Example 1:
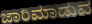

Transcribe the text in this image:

ಜಾರಿಮಾಡುವ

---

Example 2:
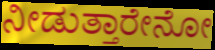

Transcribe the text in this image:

ನೀಡುತ್ತಾರೇನೋ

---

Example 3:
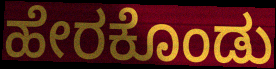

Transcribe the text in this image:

ಹೇರಕೊಂಡು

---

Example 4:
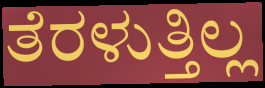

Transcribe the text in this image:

ತೆರಳುತ್ತಿಲ್ಲ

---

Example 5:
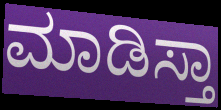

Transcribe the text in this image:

ಮಾಡಿಸ್ತಾ